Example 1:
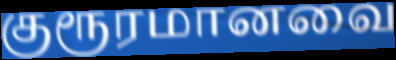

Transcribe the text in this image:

குரூரமானவை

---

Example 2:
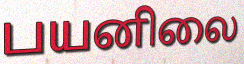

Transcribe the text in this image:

பயனிலை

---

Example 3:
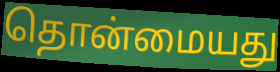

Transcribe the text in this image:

தொன்மையது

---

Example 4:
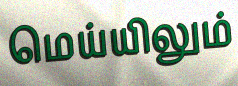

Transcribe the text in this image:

மெய்யிலும்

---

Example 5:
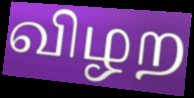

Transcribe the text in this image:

விழற